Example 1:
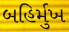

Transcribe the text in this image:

બહિર્મુખ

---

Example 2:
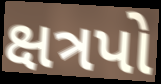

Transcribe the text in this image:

ક્ષત્રપો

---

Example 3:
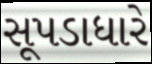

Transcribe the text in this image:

સૂપડાધારે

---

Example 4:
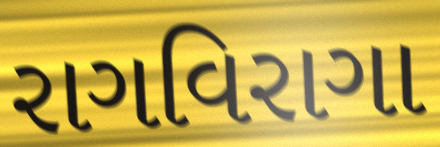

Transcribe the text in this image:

રાગવિરાગા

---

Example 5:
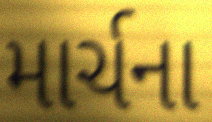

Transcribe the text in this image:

માર્ચના